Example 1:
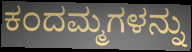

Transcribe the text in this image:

ಕಂದಮ್ಮಗಳನ್ನು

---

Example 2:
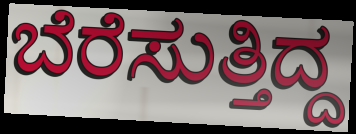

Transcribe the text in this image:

ಬೆರೆಸುತ್ತಿದ್ದ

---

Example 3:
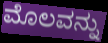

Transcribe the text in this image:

ಮೊಲವನ್ನು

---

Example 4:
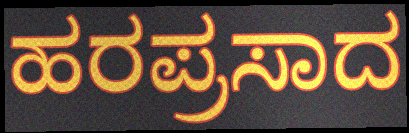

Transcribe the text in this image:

ಹರಪ್ರಸಾದ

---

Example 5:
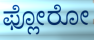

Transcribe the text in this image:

ಫ್ಲೋರೋ